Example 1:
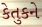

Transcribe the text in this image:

કેતુકને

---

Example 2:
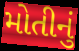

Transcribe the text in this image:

મોતીનું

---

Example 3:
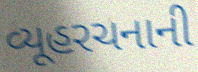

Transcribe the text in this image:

વ્યૂહરચનાની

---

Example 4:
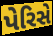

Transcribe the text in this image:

પેરિસે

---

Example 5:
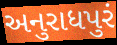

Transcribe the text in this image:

અનુરાધપુરં